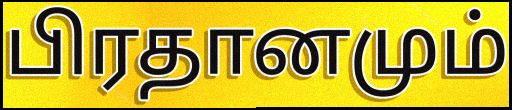
பிரதானமும்